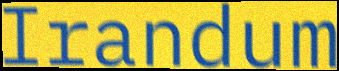
Irandum